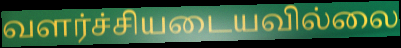
வளர்ச்சியடையவில்லை